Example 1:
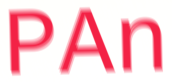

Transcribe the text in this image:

PAn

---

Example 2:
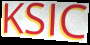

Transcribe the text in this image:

KSIC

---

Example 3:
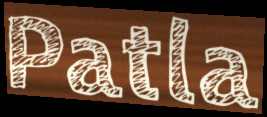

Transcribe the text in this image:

Patla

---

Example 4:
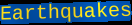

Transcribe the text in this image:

Earthquakes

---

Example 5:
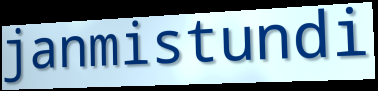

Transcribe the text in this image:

janmistundi